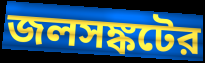
জলসঙ্কটের